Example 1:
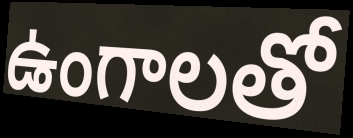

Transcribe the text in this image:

ఉంగాలతో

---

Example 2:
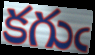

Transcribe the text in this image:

కగుఁ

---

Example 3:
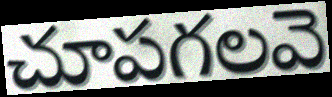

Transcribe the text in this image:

చూపగలవె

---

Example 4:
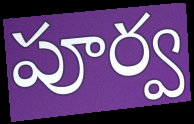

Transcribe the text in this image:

పూర్వ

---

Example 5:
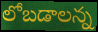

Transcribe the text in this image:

లోబడాలన్న